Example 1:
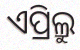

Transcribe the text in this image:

ଏପ୍ରିଲ୍ରୁ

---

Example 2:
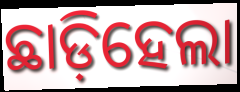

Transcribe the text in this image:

ଛାଡ଼ିହେଲା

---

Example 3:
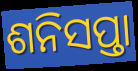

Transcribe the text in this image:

ଶନିସପ୍ତା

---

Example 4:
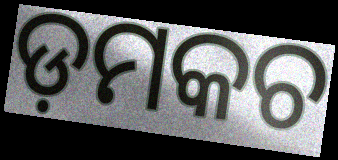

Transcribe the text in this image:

ଡ଼ମକଚ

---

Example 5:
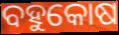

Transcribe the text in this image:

ବହୁକୋଷ